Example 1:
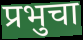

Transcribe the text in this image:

प्रभुचा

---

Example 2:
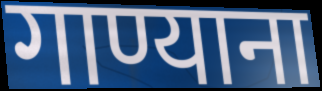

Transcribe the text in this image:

गाण्याना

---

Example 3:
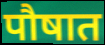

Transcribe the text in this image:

पौषात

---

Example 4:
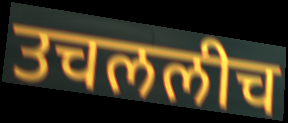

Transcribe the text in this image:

उचललीच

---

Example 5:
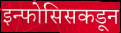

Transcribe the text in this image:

इन्फोसिसकडून